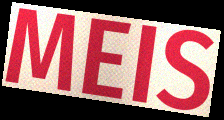
MEIS